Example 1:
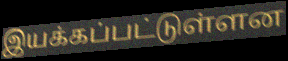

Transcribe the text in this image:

இயக்கப்பட்டுள்ளன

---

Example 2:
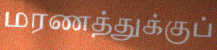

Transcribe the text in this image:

மரணத்துக்குப்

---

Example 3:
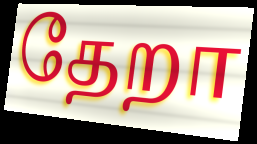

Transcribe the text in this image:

தேறா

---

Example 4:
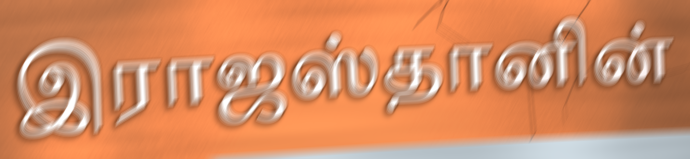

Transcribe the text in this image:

இராஜஸ்தானின்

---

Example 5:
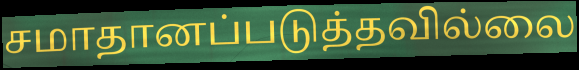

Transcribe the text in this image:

சமாதானப்படுத்தவில்லை